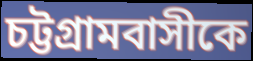
চট্টগ্রামবাসীকে